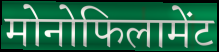
मोनोफिलामेंट